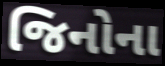
જિનોના